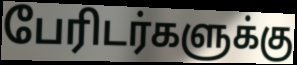
பேரிடர்களுக்கு